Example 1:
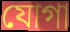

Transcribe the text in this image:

যোগা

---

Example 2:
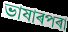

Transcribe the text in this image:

ভাষাৰপৰা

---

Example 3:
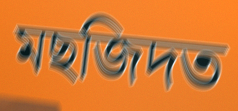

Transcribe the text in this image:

মছজিদত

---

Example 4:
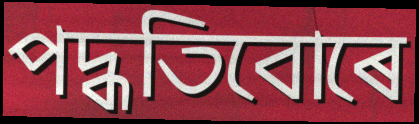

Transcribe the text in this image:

পদ্ধতিবোৰে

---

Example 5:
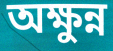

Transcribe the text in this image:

অক্ষুন্ন